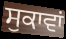
ਸੁਕਾਵਾਂ